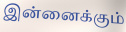
இன்னைக்கும்